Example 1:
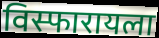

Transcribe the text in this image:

विस्फारायला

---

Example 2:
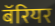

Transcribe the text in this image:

बॅरियर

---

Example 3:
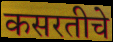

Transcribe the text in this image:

कसरतीचे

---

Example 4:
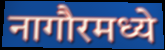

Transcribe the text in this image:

नागौरमध्ये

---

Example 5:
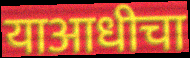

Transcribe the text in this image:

याआधीचा